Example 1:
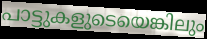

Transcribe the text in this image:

പാട്ടുകളുടെയെങ്കിലും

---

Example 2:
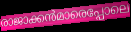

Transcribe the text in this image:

രാജാക്കൻമാരെപ്പോലെ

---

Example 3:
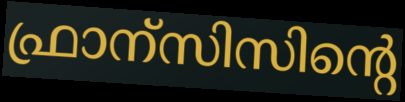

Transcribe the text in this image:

ഫ്രാന്സിസിന്റെ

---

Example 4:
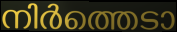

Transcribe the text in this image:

നിർത്തെടാ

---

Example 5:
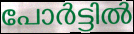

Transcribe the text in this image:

പോർട്ടിൽ